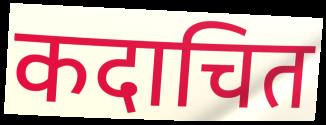
कदाचित